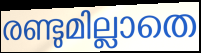
രണ്ടുമില്ലാതെ